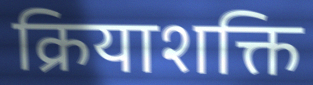
क्रियाशक्ति